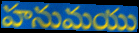
హనుమయు